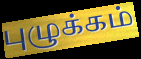
புழுக்கம்